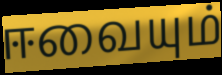
ஈவையும்